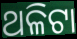
ଥଳିଟା